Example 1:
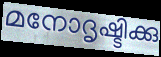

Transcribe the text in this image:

മനോദൃഷ്ടിക്കു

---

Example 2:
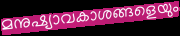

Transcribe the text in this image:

മനുഷ്യാവകാശങ്ങളെയും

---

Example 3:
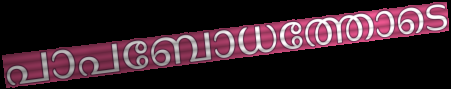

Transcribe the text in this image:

പാപബോധത്തോടെ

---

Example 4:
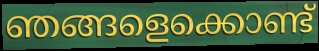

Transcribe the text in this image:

ഞങ്ങളെക്കൊണ്ട്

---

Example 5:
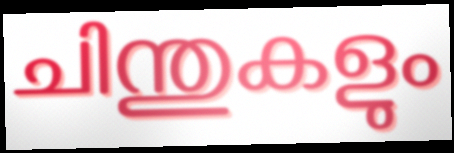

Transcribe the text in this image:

ചിന്തുകളും